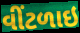
વીંટળાઇ